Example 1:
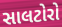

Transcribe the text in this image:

સાલટોરો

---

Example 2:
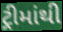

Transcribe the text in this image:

ટ્રીમાંથી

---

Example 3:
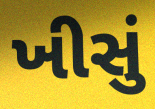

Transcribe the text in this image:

ખીસું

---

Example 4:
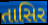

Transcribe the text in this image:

તાસિર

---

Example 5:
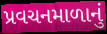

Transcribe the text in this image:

પ્રવચનમાળાનું